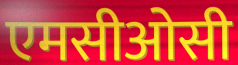
एमसीओसी